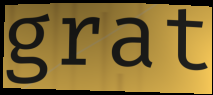
grat